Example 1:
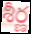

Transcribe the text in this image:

శీర్ణ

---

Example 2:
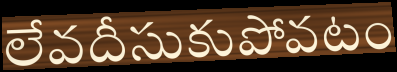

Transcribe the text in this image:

లేవదీసుకుపోవటం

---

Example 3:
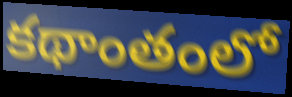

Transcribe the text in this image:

కథాంతంలో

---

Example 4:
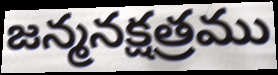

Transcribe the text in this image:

జన్మనక్షత్రము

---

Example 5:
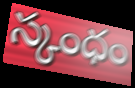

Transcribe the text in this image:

స్కంధం